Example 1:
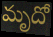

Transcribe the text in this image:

మృదో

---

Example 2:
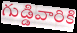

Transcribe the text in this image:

గుడ్డివారికి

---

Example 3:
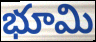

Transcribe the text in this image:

భూమి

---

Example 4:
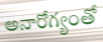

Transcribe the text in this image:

అనారోగ్యంతో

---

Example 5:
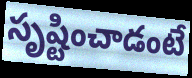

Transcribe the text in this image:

సృష్టించాడంటే